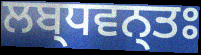
ਲਬ੍ਧਵਨ੍ਤਃ